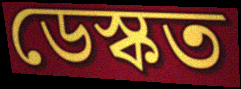
ডেস্কত